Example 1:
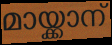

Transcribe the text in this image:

മായ്ക്കാന്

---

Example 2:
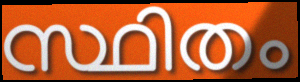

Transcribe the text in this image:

സ്ഥിതം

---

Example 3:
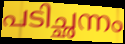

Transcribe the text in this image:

പടിച്ഛന്നം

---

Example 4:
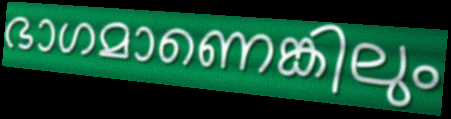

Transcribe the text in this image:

ഭാഗമാണെങ്കിലും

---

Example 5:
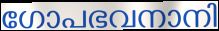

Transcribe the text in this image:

ഗോപഭവനാനി